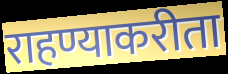
राहण्याकरीता